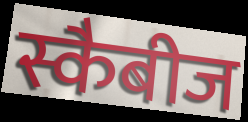
स्कैबीज